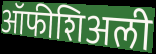
ऑफीशिअली